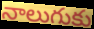
నాలుగుకు